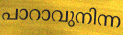
പാറാവുനിന്ന